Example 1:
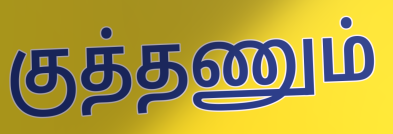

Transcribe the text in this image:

குத்தணும்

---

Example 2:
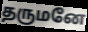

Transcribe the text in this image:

தருமனே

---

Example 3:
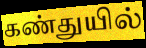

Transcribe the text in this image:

கண்துயில்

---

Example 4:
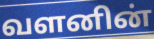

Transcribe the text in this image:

வளனின்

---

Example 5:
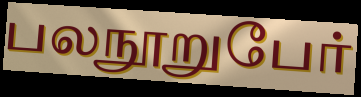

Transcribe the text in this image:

பலநூறுபேர்